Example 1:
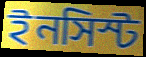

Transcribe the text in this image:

ইনসিস্ট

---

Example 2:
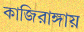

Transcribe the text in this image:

কাজিরাঙ্গায়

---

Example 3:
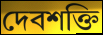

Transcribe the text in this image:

দেবশক্তি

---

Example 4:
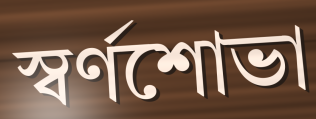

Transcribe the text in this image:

স্বর্ণশোভা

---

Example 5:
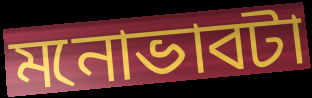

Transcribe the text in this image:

মনোভাবটা